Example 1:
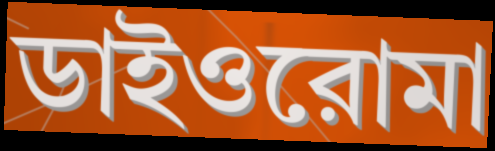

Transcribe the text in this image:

ডাইওরোমা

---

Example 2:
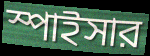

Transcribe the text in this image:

স্পাইসার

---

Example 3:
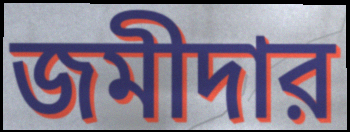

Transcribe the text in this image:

জমীদার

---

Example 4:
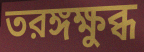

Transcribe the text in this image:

তরঙ্গক্ষুব্ধ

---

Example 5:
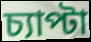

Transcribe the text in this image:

চ্যাপ্টা